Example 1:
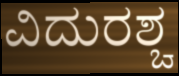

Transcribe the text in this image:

ವಿದುರಶ್ಚ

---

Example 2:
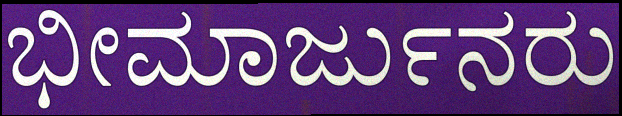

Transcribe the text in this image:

ಭೀಮಾರ್ಜುನರು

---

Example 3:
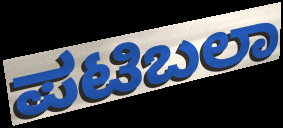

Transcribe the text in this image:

ಪಟಿಬಲಾ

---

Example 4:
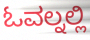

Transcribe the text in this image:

ಓವಲ್ನಲ್ಲಿ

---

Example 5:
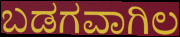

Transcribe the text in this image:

ಬಡಗವಾಗಿಲ